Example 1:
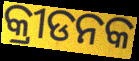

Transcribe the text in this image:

କ୍ରୀଡନକ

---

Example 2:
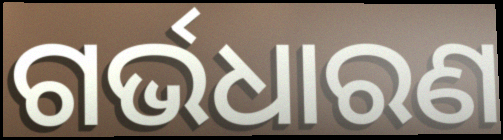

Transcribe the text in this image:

ଗର୍ଭଧାରଣ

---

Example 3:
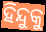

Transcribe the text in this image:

ହିନ୍ଦୁକୁ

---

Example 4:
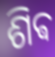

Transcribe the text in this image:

ଶିଵ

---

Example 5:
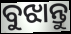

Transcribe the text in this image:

ବୁଝାନ୍ତୁ